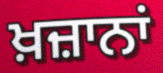
ਖ਼ਜ਼ਾਨਾਂ